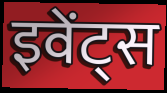
इवेंट्स